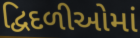
દ્વિદળીઓમાં